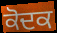
ਕੋਦਕ